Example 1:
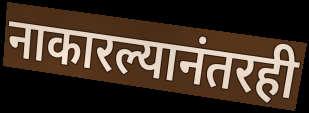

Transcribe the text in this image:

नाकारल्यानंतरही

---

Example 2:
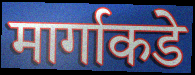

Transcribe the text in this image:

मार्गाकडे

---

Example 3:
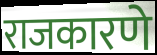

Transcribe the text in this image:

राजकारणे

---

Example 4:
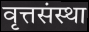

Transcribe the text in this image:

वृत्तसंस्था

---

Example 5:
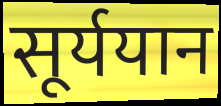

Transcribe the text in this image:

सूर्ययान